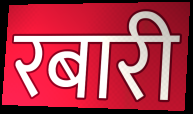
रबारी